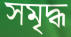
সমৃদ্ধ